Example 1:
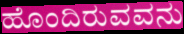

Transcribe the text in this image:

ಹೊಂದಿರುವವನು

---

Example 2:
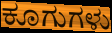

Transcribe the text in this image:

ಕೂಗುಗಳು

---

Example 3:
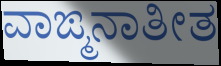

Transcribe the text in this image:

ವಾಙ್ಮನಾತೀತ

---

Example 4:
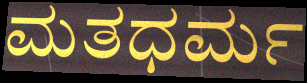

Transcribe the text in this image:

ಮತಧರ್ಮ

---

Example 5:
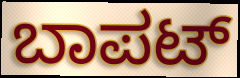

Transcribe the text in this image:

ಬಾಪಟ್